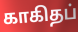
காகிதப்